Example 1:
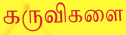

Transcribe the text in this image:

கருவிகளை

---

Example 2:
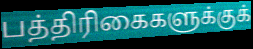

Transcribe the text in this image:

பத்திரிகைகளுக்குக்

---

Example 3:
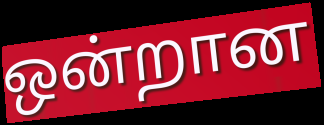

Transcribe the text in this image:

ஒன்றான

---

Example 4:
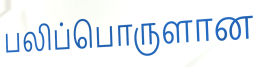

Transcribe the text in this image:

பலிப்பொருளான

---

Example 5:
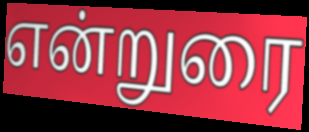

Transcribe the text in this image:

என்றுரை